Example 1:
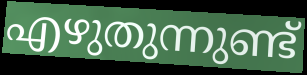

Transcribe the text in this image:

എഴുതുന്നുണ്ട്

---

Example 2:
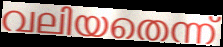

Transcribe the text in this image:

വലിയതെന്ന്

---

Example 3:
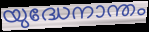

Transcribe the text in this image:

യുദ്ധേനാന്തം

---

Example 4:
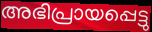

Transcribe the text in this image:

അഭിപ്രായപ്പെട്ടു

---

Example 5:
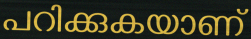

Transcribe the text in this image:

പറിക്കുകയാണ്